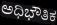
ಅಧಿಭೌತಿಕ